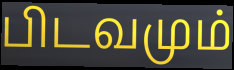
பிடவமும்